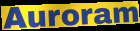
Auroram